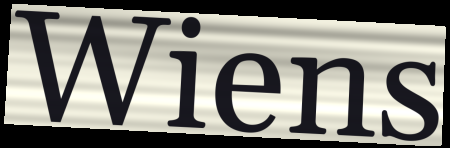
Wiens